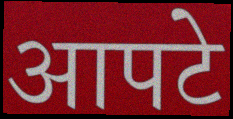
आपटे